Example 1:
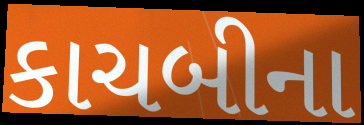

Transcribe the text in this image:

કાચબીના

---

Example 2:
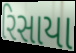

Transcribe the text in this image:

રિસાયા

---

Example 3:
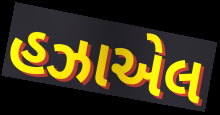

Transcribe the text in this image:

હઝાએલ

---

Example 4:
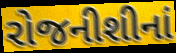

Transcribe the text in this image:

રોજનીશીનાં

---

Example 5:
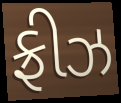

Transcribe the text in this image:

ફ્રીઝ